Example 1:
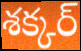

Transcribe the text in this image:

శక్కర్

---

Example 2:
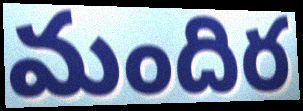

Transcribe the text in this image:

మందిర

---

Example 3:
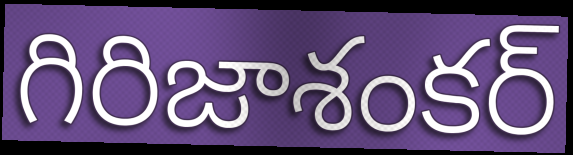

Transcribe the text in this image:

గిరిజాశంకర్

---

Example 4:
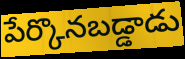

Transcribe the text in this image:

పేర్కొనబడ్డాడు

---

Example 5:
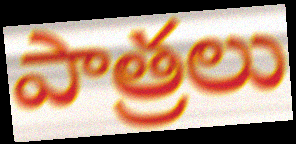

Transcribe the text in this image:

పాత్రలు